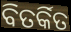
ବିତର୍କିତ